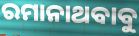
ରମାନାଥବାବୁ